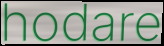
hodare